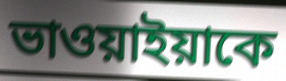
ভাওয়াইয়াকে